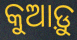
କୁଆଡ଼ୁ